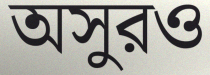
অসুরও